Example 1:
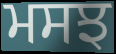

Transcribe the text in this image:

ਮਸਝ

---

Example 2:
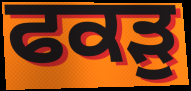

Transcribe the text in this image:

ਫਕੜੁ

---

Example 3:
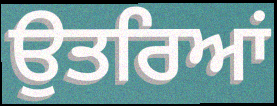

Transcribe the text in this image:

ਉਤਰਿਆਂ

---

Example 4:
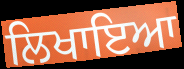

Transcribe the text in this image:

ਲਿਖਾਇਆ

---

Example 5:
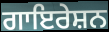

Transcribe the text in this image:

ਗਾਇਰੇਸ਼ਨ